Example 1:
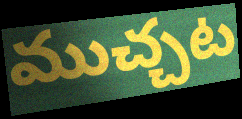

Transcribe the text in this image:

ముచ్చట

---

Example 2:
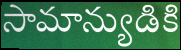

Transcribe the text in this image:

సామాన్యుడికి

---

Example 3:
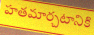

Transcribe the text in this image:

హతమార్చటానికి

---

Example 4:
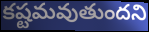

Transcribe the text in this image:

కష్టమవుతుందని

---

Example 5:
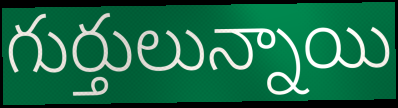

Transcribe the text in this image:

గుర్తులున్నాయి